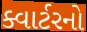
ક્વાર્ટરનો